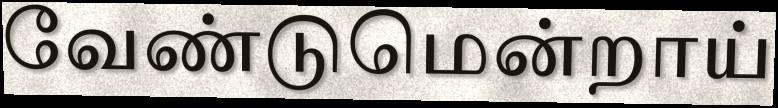
வேண்டுமென்றாய்